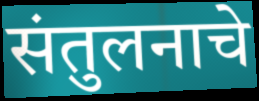
संतुलनाचे